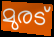
മുരട്